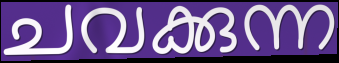
ചവക്കുന്ന